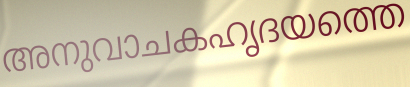
അനുവാചകഹൃദയത്തെ